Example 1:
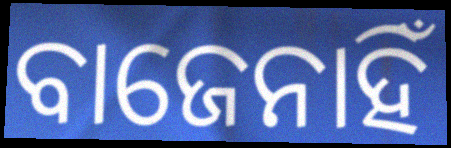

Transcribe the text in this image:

ବାଜେନାହିଁ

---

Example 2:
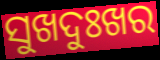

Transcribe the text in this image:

ସୁଖଦୁଃଖର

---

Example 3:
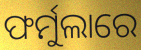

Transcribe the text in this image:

ଫର୍ମୁଲାରେ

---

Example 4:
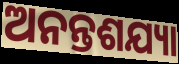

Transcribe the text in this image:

ଅନନ୍ତଶଯ୍ୟା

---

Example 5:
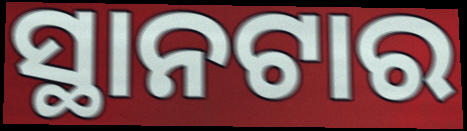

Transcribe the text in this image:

ସ୍ଥାନଟାର